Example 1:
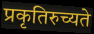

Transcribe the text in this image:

प्रकृतिरुच्यते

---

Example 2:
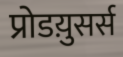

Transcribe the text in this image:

प्रोडय़ुसर्स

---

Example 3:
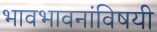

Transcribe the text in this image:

भावभावनांविषयी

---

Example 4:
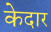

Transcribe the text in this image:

केदार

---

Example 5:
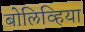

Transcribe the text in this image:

बोलिव्हिया